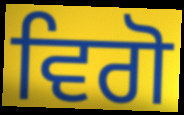
ਵਿਗੋ